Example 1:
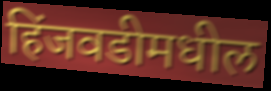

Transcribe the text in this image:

हिंजवडीमधील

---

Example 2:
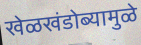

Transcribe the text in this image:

खेळखंडोब्यामुळे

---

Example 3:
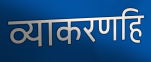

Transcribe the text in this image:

व्याकरणहि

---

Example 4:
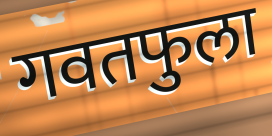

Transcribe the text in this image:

गवतफुला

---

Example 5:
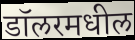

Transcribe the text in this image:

डॉलरमधील